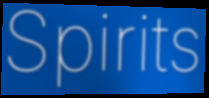
Spirits